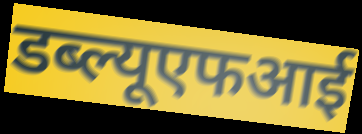
डब्ल्यूएफआई